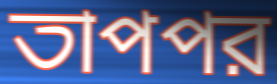
তাপপর